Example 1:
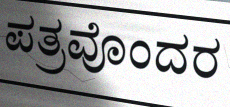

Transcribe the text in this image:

ಪತ್ರವೊಂದರ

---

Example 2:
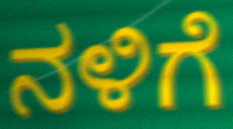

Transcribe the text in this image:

ನಳಿಗೆ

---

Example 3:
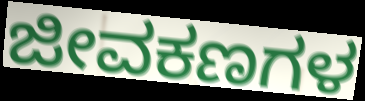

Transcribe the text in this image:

ಜೀವಕಣಗಳ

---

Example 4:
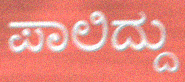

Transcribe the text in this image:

ಪಾಲಿದ್ದು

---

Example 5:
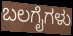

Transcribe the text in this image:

ಬಲಗೈಗಳು